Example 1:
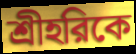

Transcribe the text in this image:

শ্রীহরিকে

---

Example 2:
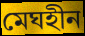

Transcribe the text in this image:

মেঘহীন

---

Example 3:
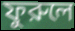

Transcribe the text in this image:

ফুরুলে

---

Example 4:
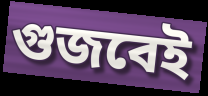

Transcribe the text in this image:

গুজবেই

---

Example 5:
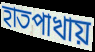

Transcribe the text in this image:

হাতপাখায়